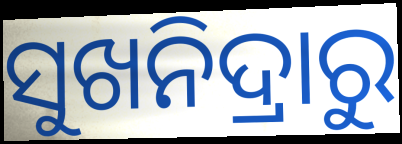
ସୁଖନିଦ୍ରାରୁ